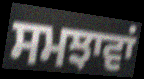
ਸਮਝਾਵਾਂ